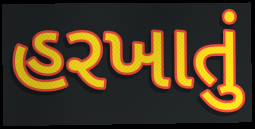
હરખાતું